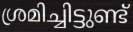
ശ്രമിച്ചിട്ടുണ്ട്